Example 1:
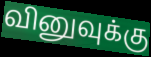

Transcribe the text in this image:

வினுவுக்கு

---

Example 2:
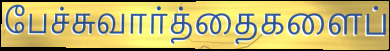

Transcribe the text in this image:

பேச்சுவார்த்தைகளைப்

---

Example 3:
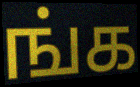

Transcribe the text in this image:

ங்க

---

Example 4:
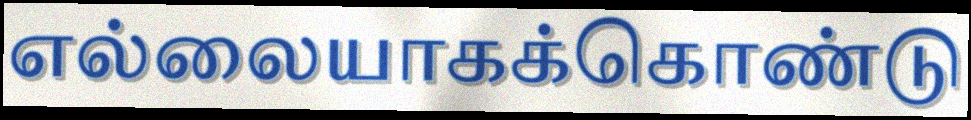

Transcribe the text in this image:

எல்லையாகக்கொண்டு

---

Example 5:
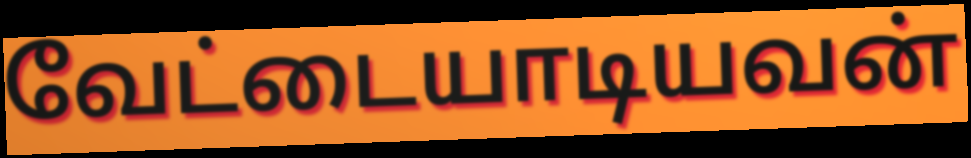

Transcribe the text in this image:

வேட்டையாடியவன்